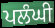
ਪਲੰਘੀ